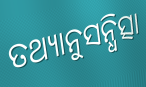
ତଥ୍ୟାନୁସନ୍ଧିତ୍ସା